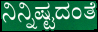
ನಿನ್ನಿಷ್ಟದಂತೆ